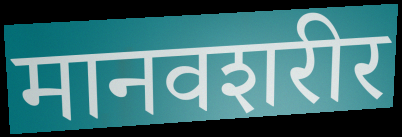
मानवशरीर